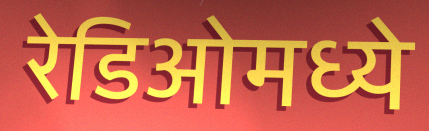
रेडिओमध्ये